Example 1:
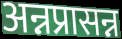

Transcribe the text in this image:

अन्नप्रासन्न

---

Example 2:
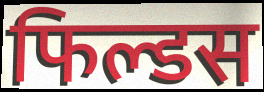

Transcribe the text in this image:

फिल्डस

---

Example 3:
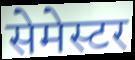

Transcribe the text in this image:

सेमेस्टर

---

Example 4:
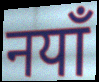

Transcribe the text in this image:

नयाँ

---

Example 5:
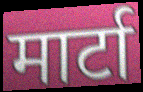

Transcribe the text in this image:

मार्टा